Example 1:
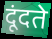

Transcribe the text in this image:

दूंदते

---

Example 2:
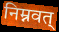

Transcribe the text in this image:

निम्नवत्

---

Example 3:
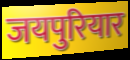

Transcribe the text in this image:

जयपुरियार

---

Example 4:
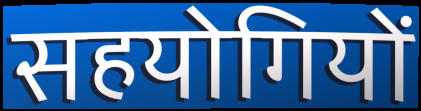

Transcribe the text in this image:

सहयोगियों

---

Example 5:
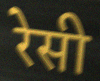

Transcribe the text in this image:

रेसी